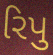
રિપુ